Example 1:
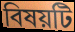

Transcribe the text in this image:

বিষয়টি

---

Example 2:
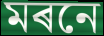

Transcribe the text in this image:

মৰনে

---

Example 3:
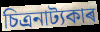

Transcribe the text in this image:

চিত্ৰনাট্যকাৰ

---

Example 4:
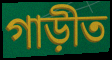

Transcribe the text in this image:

গাড়ীত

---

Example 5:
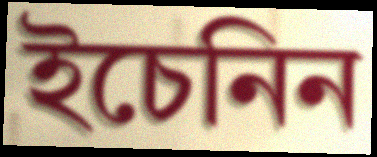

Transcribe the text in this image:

ইচেনিন